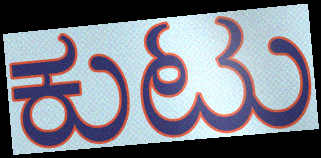
ಕುಟು